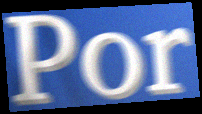
Por